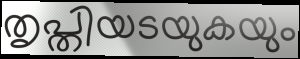
തൃപ്തിയടയുകയും